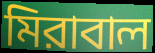
মিরাবাল